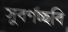
সুবর্ণচ্ছবি